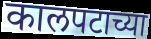
कालपटाच्या